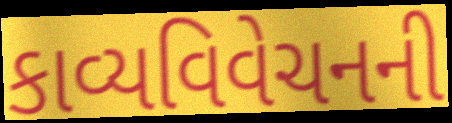
કાવ્યવિવેચનની